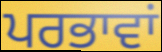
ਪਰਭਾਵਾਂ